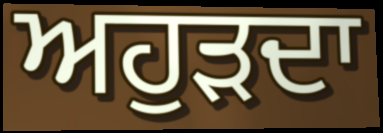
ਅਹੁੜਦਾ